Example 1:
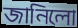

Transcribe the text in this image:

জানিলো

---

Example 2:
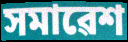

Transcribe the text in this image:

সমাৱেশ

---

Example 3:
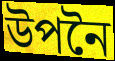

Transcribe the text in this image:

উপনৈ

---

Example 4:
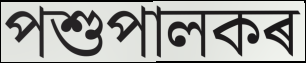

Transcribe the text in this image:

পশুপালকৰ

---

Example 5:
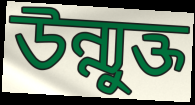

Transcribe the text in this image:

উন্মুক্ত